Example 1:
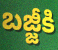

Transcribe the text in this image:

బజ్జీకి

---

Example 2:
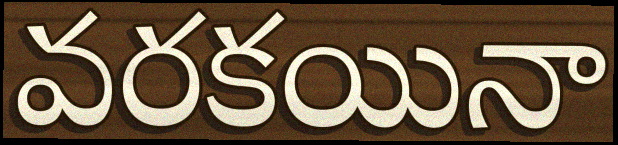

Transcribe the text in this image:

వరకయినా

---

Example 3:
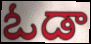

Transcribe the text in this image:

ఓడా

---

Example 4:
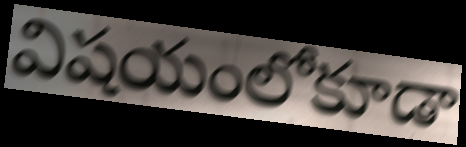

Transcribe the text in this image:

విషయంలోకూడా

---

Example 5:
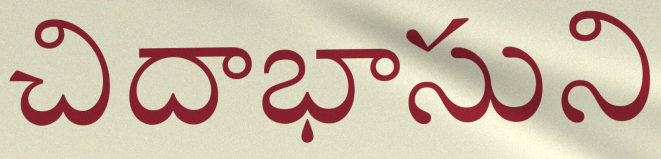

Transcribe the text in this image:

చిదాభాసుని